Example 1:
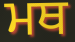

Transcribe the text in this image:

ਮਥ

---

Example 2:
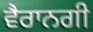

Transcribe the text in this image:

ਵੈਰਾਨਗੀ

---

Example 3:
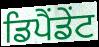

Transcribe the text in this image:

ਡਿਪੈਂਡੇਂਟ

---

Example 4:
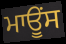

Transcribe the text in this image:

ਮਾਊਂਸ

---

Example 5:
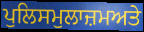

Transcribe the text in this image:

ਪੁਲਿਸਮੁਲਾਜ਼ਮਅਤੇ